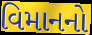
વિમાનનો